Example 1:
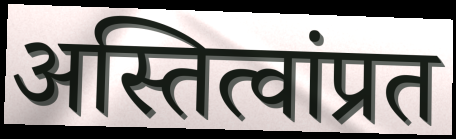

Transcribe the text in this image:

अस्तित्वांप्रत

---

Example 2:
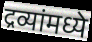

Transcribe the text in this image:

द्रव्यांमध्ये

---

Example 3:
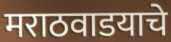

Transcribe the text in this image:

मराठवाडयाचे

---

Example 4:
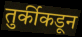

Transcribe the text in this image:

तुर्कीकडून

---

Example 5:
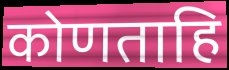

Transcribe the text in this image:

कोणताहि